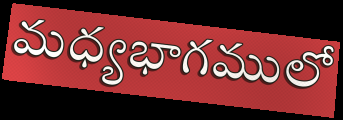
మధ్యభాగములో